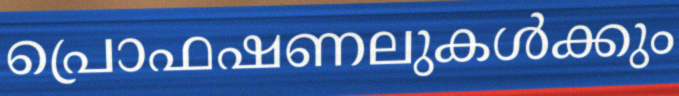
പ്രൊഫഷണലുകൾക്കും